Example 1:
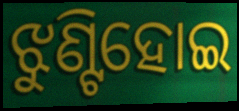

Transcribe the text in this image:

ଝୁଣ୍ଟିହୋଇ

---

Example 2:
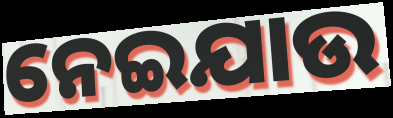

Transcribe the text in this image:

ନେଇଯାଉ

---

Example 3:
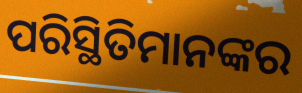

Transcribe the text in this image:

ପରିସ୍ଥିତିମାନଙ୍କର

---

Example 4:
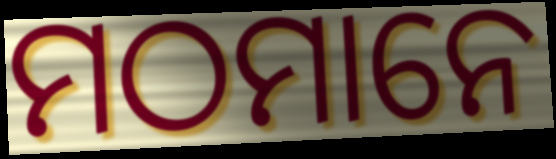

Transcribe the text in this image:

ମଠମାନେ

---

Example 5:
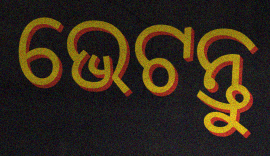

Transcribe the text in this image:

ଭେଟନ୍ତୁ